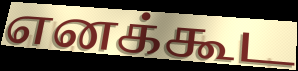
எனக்கூட